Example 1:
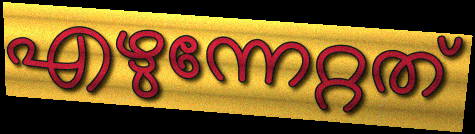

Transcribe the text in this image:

എഴുന്നേറ്റത്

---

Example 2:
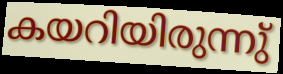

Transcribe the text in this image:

കയറിയിരുന്നു്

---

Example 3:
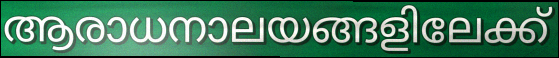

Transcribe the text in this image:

ആരാധനാലയങ്ങളിലേക്ക്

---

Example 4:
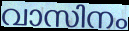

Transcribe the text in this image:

വാസിനം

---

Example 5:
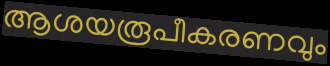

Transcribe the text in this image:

ആശയരൂപീകരണവും